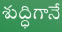
శుద్ధిగానే